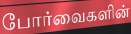
போர்வைகளின்